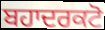
ਬਹਾਦਰਕਟੋ